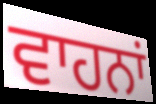
ਵਾਹਨਾਂ